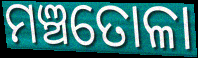
ମଞ୍ଚତୋଳା